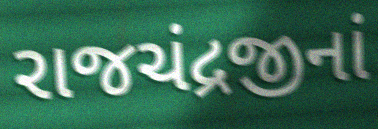
રાજચંદ્રજીનાં